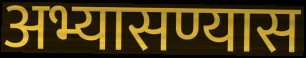
अभ्यासण्यास